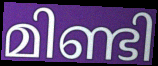
മിണ്ടി